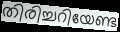
തിരിച്ചറിയേണ്ട